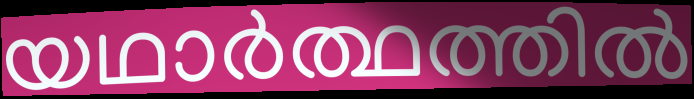
യഥാർത്ഥത്തിൽ